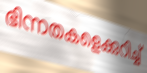
ഭിന്നതകളെക്കുറിച്ച്